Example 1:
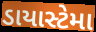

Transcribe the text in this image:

ડાયાસ્ટેમા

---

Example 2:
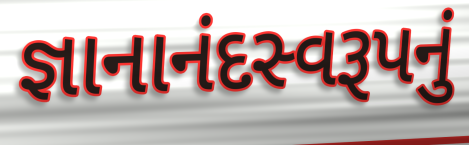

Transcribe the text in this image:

જ્ઞાનાનંદસ્વરૂપનું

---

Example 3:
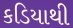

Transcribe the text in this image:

કડિયાથી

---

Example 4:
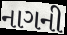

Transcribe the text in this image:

નાગની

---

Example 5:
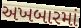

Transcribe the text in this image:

અખબારમાં